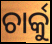
ଚାର୍କୁ